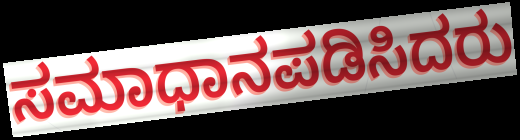
ಸಮಾಧಾನಪಡಿಸಿದರು